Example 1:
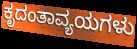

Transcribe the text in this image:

ಕೃದಂತಾವ್ಯಯಗಳು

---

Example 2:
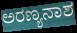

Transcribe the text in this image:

ಅರಣ್ಯನಾಶ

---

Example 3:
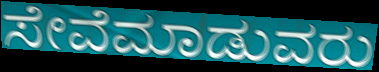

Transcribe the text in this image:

ಸೇವೆಮಾಡುವರು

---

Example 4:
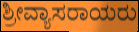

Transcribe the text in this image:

ಶ್ರೀವ್ಯಾಸರಾಯರು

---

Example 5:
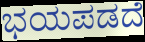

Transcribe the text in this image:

ಭಯಪಡದೆ